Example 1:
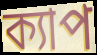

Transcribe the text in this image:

ক্যাপ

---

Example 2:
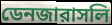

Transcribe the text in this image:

ডেনজারাসলি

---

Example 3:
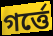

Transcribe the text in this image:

গর্ত্তে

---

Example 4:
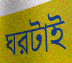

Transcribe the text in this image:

ঘরটাই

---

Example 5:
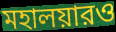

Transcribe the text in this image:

মহালয়ারও